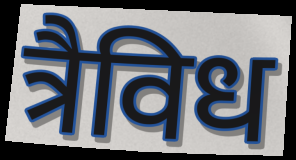
त्रैविध